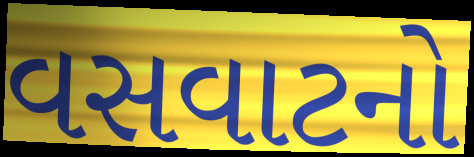
વસવાટનો